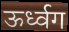
ऊर्ध्वग